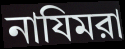
নাযিমরা